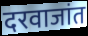
दरवाजांत